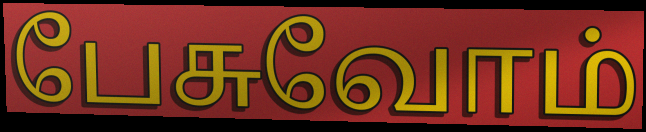
பேசுவோம்